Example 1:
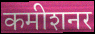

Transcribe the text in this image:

कमीशनर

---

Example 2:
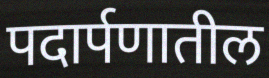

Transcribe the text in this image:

पदार्पणातील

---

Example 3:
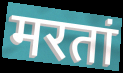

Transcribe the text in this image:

मरतां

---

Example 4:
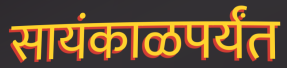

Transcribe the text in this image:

सायंकाळपर्यंत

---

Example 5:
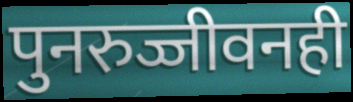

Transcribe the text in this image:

पुनरुज्जीवनही